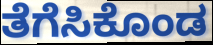
ತೆಗೆಸಿಕೊಂಡ